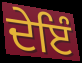
ਦੇਇੰ